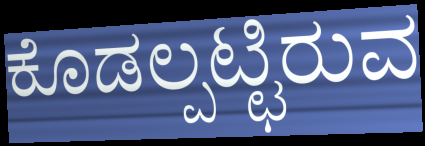
ಕೊಡಲ್ಪಟ್ಟಿರುವ